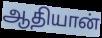
ஆதியான்